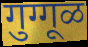
गुग्गूळ